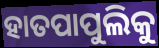
ହାତପାପୁଲିକୁ